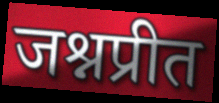
जश्नप्रीत